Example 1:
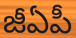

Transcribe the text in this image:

జీఏపీ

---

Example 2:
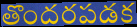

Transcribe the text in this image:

తొందరపడక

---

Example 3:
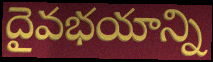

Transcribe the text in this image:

దైవభయాన్ని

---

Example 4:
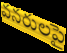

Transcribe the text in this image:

వనరులపై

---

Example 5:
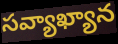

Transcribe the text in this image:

సవ్యాఖ్యాన